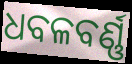
ଧବଳବର୍ଣ୍ଣ